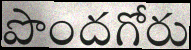
పొందగోరు